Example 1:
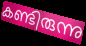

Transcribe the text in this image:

കണ്ടിരുന്നു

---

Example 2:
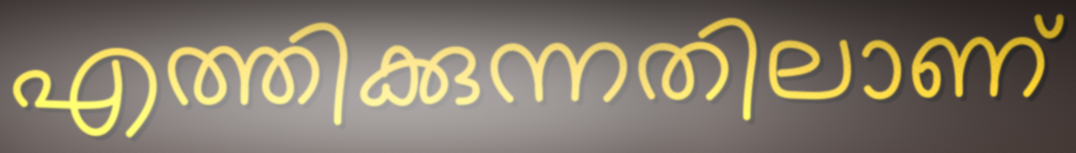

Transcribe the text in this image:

എത്തിക്കുന്നതിലാണ്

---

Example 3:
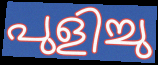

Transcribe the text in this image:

പുളിച്ചു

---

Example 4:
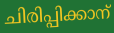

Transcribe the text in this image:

ചിരിപ്പിക്കാന്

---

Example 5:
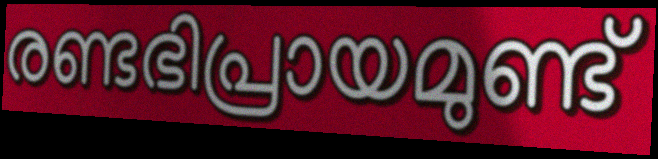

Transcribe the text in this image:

രണ്ടഭിപ്രായമുണ്ട്